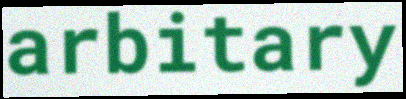
arbitary